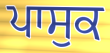
ਪਾਸੁਕ